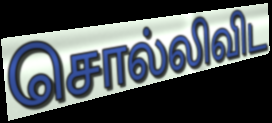
சொல்லிவிட